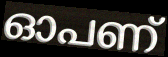
ഓപണ്